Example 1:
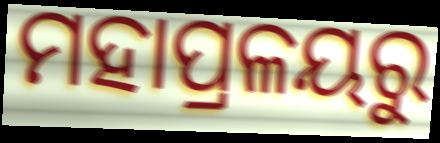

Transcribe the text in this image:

ମହାପ୍ରଳୟରୁ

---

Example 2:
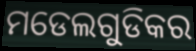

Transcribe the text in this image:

ମଡେଲଗୁଡିକର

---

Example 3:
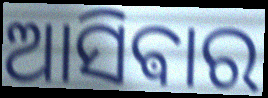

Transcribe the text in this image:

ଆସିଵାର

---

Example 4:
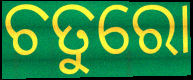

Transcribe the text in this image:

ଚତୁରୋ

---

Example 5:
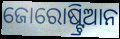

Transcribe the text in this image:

ଜୋରୋଷ୍ଟ୍ରିଆନ